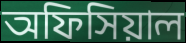
অফিসিয়াল